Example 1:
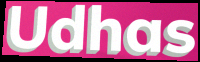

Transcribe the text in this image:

Udhas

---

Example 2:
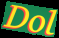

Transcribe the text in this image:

Dol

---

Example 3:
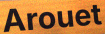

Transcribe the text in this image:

Arouet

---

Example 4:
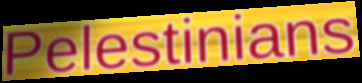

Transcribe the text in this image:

Pelestinians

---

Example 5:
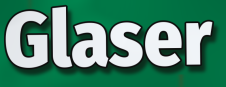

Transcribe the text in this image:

Glaser